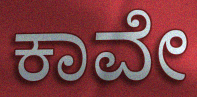
ಕಾವೇ